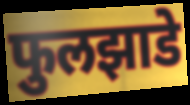
फुलझाडे